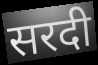
सरदी